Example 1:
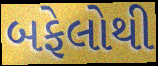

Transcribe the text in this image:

બફેલોથી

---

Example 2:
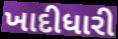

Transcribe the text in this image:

ખાદીધારી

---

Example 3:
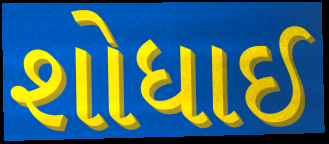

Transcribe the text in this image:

શોધાઈ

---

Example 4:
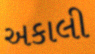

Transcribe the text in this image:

અકાલી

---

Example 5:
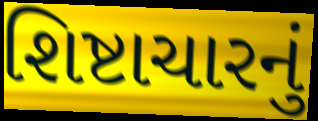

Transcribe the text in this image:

શિષ્ટાચારનું